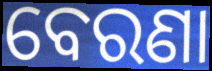
ବେରଣା